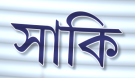
সাকি